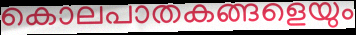
കൊലപാതകങ്ങളെയും